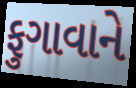
ફુગાવાને